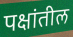
पक्षांतील